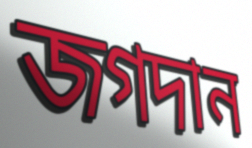
জগদান